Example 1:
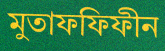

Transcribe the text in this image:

মুতাফফিফীন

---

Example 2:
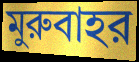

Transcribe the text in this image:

মুরুবাহর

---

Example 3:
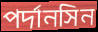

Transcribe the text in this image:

পর্দানসিন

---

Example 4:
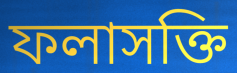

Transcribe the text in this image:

ফলাসক্তি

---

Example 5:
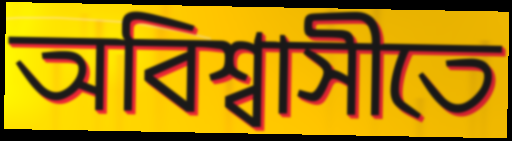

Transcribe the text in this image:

অবিশ্বাসীতে